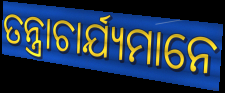
ତନ୍ତ୍ରାଚାର୍ଯ୍ୟମାନେ